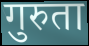
गुरुता